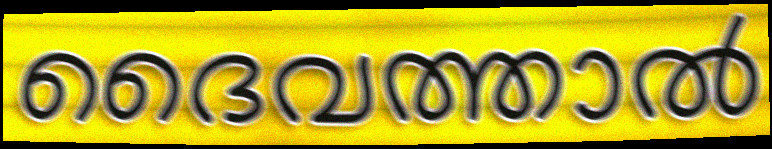
ദൈവത്താൽ